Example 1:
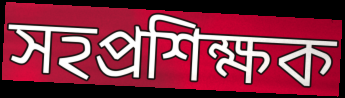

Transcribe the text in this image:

সহপ্রশিক্ষক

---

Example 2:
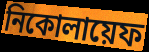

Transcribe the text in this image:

নিকোলায়েফ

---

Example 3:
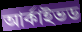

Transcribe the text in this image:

আর্কাইভড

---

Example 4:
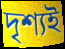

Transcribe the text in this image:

দৃশ্যই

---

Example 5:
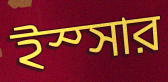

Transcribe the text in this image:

ইস্সার